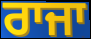
ਰਾਜਾ